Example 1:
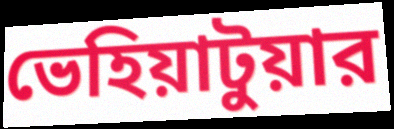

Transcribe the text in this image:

ভেহিয়াটুয়ার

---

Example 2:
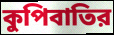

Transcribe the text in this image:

কুপিবাতির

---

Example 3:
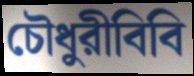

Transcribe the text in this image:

চৌধুরীবিবি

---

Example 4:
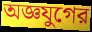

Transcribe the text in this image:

অজ্ঞযুগের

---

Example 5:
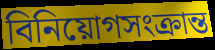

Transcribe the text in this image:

বিনিয়োগসংক্রান্ত